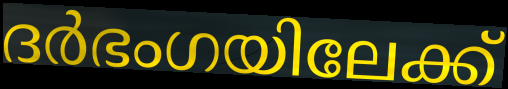
ദർഭംഗയിലേക്ക്